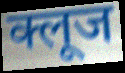
क्लूज